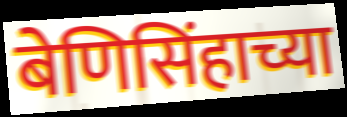
बेणिसिंहाच्या